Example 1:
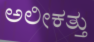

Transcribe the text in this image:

ಅಲೀಕತ್ತು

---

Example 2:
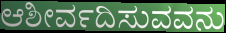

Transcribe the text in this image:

ಆಶೀರ್ವದಿಸುವವನು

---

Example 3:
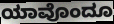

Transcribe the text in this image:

ಯಾವೊಂದೂ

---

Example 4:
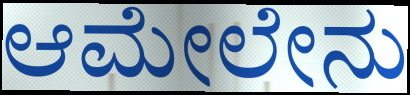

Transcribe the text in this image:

ಆಮೇಲೇನು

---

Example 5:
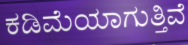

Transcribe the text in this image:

ಕಡಿಮೆಯಾಗುತ್ತಿವೆ